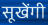
सूखेंगी